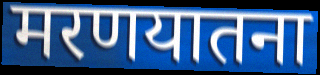
मरणयातना